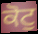
ਕੋਟੁ